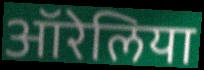
ऑरेलिया